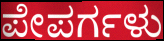
ಪೇಪರ್ಗಳು